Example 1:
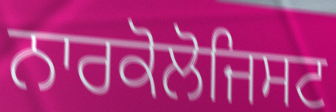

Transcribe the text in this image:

ਨਾਰਕੋਲੋਜਿਸਟ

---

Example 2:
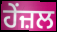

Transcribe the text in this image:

ਹੇਂਜ਼ਲ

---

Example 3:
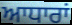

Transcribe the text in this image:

ਆਧਾਰਾਂ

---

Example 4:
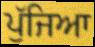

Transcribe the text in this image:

ਪੁੱਜਿਆ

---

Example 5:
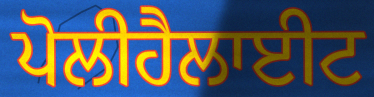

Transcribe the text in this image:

ਪੋਲੀਹੈਲਾਈਟ